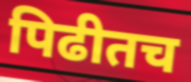
पिढीतच